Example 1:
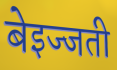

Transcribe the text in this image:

बेइज्‍जती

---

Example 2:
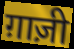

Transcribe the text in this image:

ग़ाज़ी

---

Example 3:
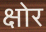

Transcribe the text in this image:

क्षोर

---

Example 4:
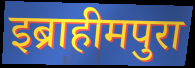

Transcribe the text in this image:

इब्राहीमपुरा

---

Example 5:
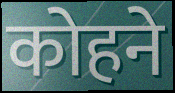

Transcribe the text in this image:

कोहने